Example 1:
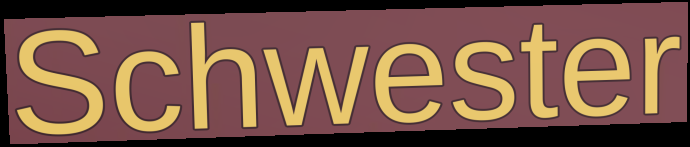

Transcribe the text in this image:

Schwester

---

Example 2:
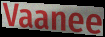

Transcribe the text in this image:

Vaanee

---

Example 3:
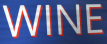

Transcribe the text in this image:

WINE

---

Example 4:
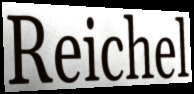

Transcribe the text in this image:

Reichel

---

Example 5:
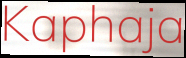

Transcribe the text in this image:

Kaphaja